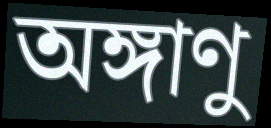
অঙ্গাণু